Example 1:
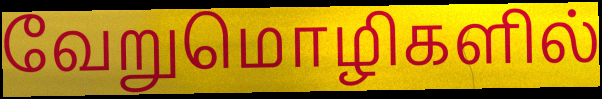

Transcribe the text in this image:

வேறுமொழிகளில்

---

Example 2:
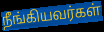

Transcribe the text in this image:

நீங்கியவர்கள்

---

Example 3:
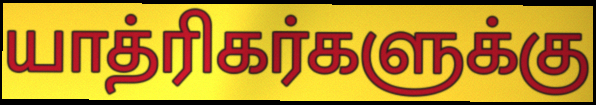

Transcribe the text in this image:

யாத்ரிகர்களுக்கு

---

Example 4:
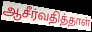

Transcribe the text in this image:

ஆசீர்வதித்தாள்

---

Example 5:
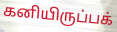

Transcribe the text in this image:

கனியிருப்பக்